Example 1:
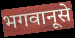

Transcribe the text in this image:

भगवानूसे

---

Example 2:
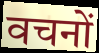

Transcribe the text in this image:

वचनों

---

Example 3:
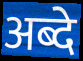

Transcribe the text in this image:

अब्दे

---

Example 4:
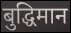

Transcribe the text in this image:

बुद्धिमान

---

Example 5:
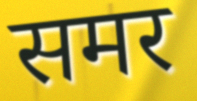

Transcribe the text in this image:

समर